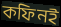
কফিনই